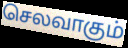
செலவாகும்